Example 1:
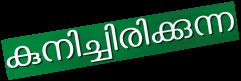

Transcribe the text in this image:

കുനിച്ചിരിക്കുന്ന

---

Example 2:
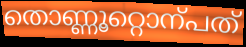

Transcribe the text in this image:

തൊണ്ണൂറ്റൊന്പത്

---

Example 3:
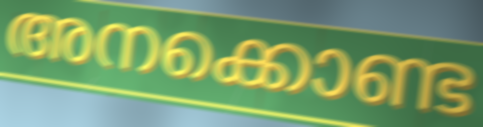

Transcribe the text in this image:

അനക്കൊണ്ട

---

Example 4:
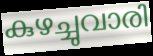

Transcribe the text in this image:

കുഴച്ചുവാരി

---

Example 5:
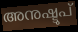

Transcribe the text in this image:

അനുഷ്ടുപ്